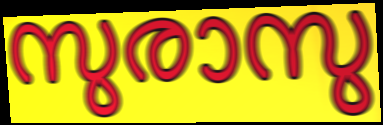
സുരാസു